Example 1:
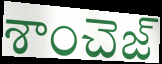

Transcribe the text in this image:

శాంచెజ్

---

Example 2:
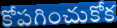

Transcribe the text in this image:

కోపగించుకోక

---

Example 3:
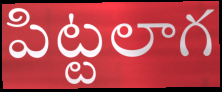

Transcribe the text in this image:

పిట్టలాగ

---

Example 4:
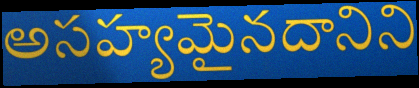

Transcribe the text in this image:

అసహ్యమైనదానిని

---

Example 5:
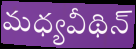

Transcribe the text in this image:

మధ్యవీథిన్